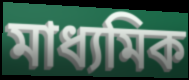
মাধ্যমিক